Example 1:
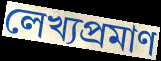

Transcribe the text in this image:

লেখ্যপ্রমাণ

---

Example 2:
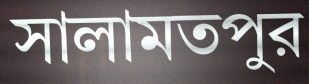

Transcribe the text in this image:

সালামতপুর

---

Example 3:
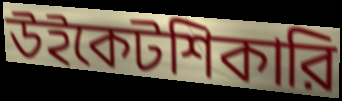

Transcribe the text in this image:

উইকেটশিকারি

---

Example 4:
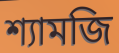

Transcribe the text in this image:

শ্যামজি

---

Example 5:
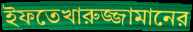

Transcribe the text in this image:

ইফতেখারুজ্জামানের